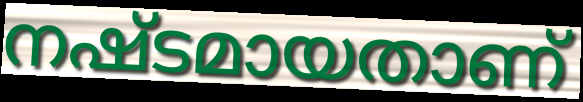
നഷ്ടമായതാണ്